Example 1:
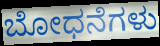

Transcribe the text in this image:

ಬೋಧನೆಗಳು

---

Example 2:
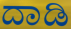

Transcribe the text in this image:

ದಾಡಿ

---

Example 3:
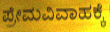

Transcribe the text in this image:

ಪ್ರೇಮವಿವಾಹಕ್ಕೆ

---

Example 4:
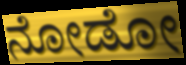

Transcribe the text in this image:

ನೋಡೋ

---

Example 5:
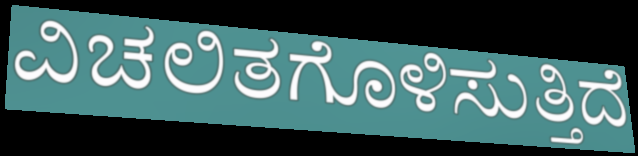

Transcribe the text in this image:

ವಿಚಲಿತಗೊಳಿಸುತ್ತಿದೆ